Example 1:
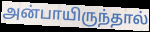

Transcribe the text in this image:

அன்பாயிருந்தால்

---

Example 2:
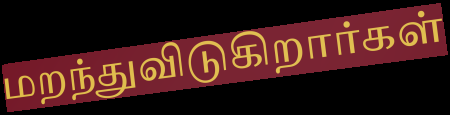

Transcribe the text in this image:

மறந்துவிடுகிறார்கள்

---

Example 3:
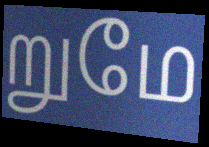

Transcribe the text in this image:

றுமே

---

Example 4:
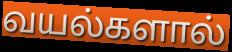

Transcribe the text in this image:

வயல்களால்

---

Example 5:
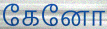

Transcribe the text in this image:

கேனோ